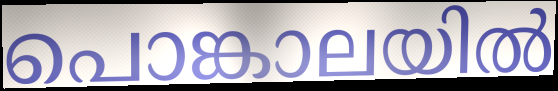
പൊങ്കാലയിൽ